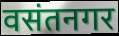
वसंतनगर